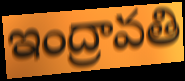
ఇంద్రావతి